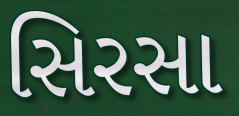
સિરસા